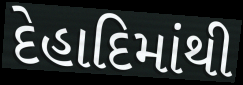
દેહાદિમાંથી